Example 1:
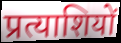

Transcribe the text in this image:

प्रत्‍याशियों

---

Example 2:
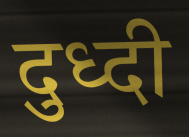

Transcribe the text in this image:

दुध्दी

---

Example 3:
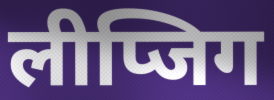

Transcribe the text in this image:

लीप्जिग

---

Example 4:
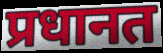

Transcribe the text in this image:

प्रधानत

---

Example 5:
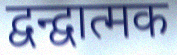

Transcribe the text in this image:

द्वन्द्वात्मक